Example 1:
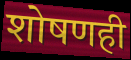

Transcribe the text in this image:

शोषणही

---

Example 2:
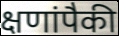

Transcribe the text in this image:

क्षणांपैकी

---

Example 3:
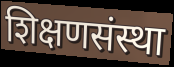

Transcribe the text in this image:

शिक्षणसंस्था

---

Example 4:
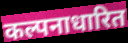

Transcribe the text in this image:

कल्पनाधारित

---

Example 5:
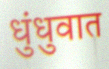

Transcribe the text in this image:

धुंधुवात